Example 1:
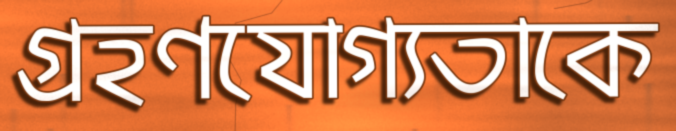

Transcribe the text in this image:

গ্রহণযোগ্যতাকে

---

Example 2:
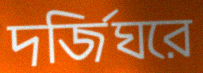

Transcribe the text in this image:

দর্জিঘরে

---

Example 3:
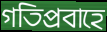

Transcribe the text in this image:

গতিপ্রবাহে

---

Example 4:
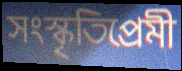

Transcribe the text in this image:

সংস্কৃতিপ্রেমী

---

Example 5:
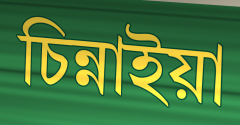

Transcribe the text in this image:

চিন্নাইয়া